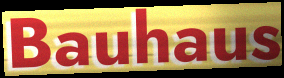
Bauhaus